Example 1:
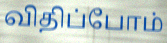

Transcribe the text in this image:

விதிப்போம்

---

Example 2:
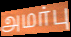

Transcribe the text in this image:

அமர்பு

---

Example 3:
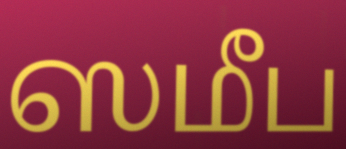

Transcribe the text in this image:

ஸமீப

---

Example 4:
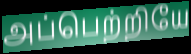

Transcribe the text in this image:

அப்பெற்றியே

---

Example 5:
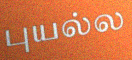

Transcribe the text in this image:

புயல்ல